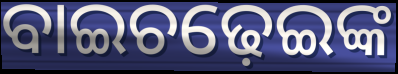
ବାଇଚଢ଼େଇଙ୍କ